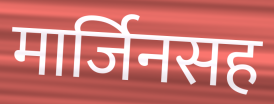
मार्जिनसह